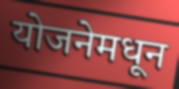
योजनेमधून